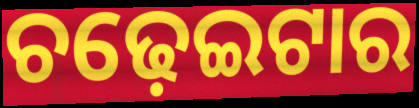
ଚଢ଼େଇଟାର